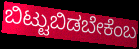
ಬಿಟ್ಟುಬಿಡಬೇಕೆಂಬ